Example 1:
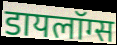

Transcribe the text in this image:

डायलॉग्स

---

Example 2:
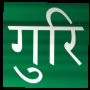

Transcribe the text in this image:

गुरि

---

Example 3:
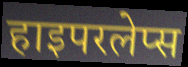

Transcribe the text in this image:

हाइपरलेप्स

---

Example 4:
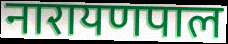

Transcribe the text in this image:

नारायणपाल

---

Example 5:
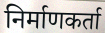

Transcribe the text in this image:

निर्माणकर्ता